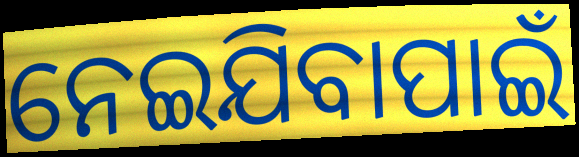
ନେଇଯିବାପାଇଁ